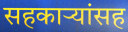
सहकाऱ्यांसह